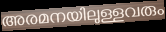
അരമനയിലുള്ളവരും